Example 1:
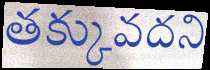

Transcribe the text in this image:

తక్కువదని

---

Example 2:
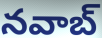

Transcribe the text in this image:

నవాబ్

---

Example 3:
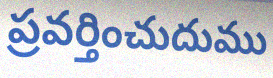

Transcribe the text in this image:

ప్రవర్తించుదుము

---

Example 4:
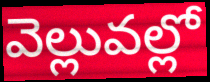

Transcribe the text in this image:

వెల్లువల్లో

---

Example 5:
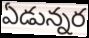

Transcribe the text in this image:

ఏడున్నర